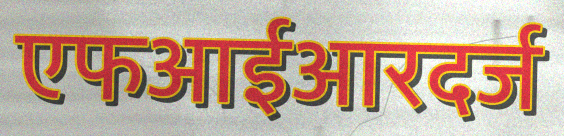
एफआईआरदर्ज